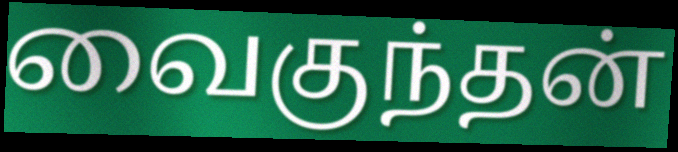
வைகுந்தன்